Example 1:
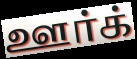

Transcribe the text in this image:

ஊர்க்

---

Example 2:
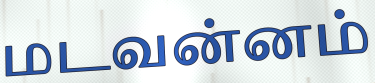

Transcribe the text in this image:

மடவன்னம்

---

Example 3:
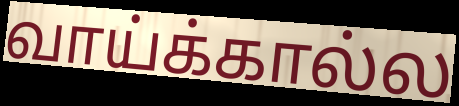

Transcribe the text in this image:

வாய்க்கால்ல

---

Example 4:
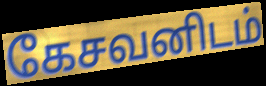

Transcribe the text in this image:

கேசவனிடம்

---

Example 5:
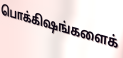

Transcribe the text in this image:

பொக்கிஷங்களைக்